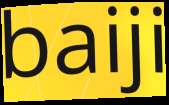
baiji